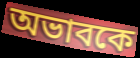
অভাবকে